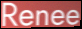
Renee